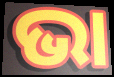
ଭା